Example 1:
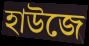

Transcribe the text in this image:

হাউজে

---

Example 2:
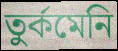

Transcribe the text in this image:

তুর্কমেনি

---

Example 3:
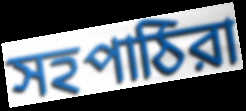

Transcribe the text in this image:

সহপাঠিরা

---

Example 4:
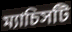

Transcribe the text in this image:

ম্যাচিসটি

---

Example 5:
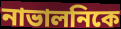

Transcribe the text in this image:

নাভালনিকে